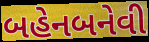
બહેનબનેવી